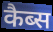
कैब्स